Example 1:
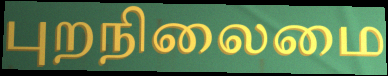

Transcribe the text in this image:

புறநிலைமை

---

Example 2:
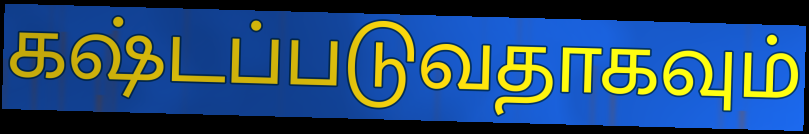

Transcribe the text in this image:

கஷ்டப்படுவதாகவும்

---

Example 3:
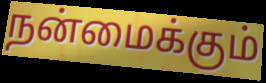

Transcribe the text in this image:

நன்மைக்கும்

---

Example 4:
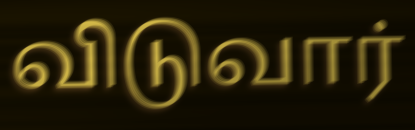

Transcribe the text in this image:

விடுவார்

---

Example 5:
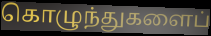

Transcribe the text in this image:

கொழுந்துகளைப்